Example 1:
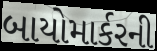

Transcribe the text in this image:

બાયોમાર્કરની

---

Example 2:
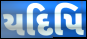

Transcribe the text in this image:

યદિપિ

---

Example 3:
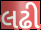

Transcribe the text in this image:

લઢી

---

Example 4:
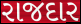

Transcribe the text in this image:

રાજદાર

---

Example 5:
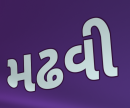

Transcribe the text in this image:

મઢવી